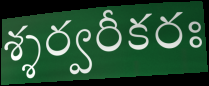
శ్శర్వరీకరః